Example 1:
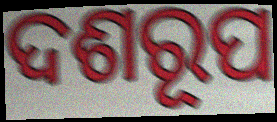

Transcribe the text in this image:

ଦଶରୂପ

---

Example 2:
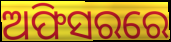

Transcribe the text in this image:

ଅଫିସରରେ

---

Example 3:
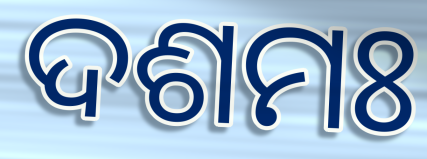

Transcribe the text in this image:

ଦଶମଃ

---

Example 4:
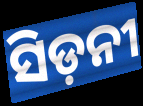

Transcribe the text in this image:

ସିଡ଼ନୀ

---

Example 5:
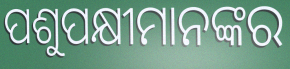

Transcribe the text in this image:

ପଶୁପକ୍ଷୀମାନଙ୍କର